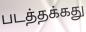
படத்தக்கது